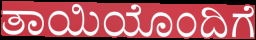
ತಾಯಿಯೊಂದಿಗೆ